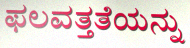
ಫಲವತ್ತತೆಯನ್ನು